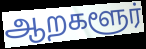
ஆறகளூர்